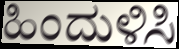
ಹಿಂದುಳಿಸಿ